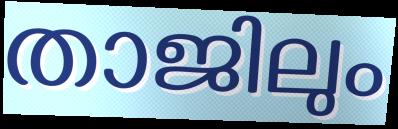
താജിലും